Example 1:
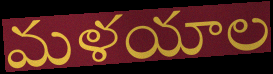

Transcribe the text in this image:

మళయాల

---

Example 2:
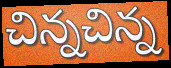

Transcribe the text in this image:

చిన్నచిన్న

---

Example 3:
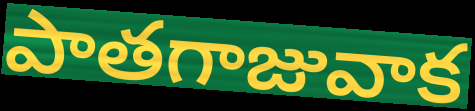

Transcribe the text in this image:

పాతగాజువాక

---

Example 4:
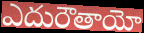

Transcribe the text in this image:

ఎదురౌతాయో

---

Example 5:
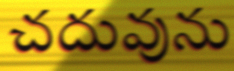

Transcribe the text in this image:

చదువును